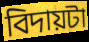
বিদায়টা